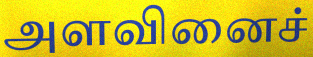
அளவினைச்